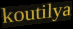
koutilya